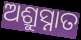
ଅଶ୍ରୁସ୍ନାତ